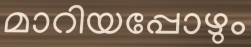
മാറിയപ്പോഴും